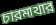
চারমাথার